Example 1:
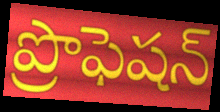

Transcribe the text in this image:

ప్రొఫెషన్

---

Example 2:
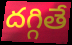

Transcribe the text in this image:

దగ్గితే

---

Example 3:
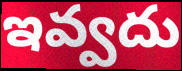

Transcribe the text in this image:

ఇవ్వదు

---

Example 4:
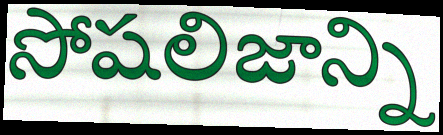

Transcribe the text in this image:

సోషలిజాన్ని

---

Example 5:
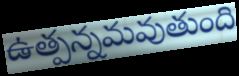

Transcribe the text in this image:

ఉత్పన్నమవుతుంది